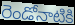
రెండోనాటికి